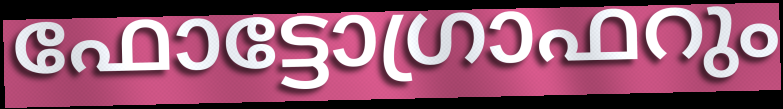
ഫോട്ടോഗ്രാഫറും